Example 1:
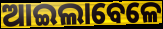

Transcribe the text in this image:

ଆଇଲାବେଳେ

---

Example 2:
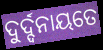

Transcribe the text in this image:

ଦୁର୍ଦ୍ଦନାୟତେ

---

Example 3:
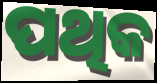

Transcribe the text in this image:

ପଥିକ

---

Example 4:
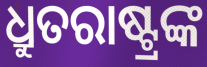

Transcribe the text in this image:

ଧ୍ରୁତରାଷ୍ଟ୍ରଙ୍କ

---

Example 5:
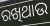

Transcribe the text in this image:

ରଖିଥାଉ